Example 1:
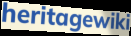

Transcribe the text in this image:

heritagewiki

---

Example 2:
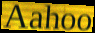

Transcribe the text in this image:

Aahoo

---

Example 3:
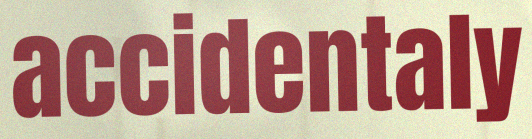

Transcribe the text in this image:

accidentaly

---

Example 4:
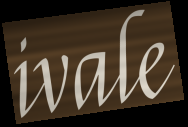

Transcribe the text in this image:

ivale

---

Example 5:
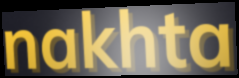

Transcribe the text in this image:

nakhta